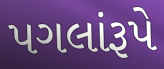
પગલાંરૂપે